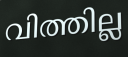
വിത്തില്ല